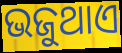
ଭଜୁଥାଏ